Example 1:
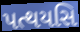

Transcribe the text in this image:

પત્થયસિ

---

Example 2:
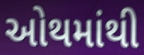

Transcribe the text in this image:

ઓથમાંથી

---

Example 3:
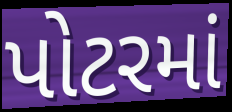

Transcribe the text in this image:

પોટરમાં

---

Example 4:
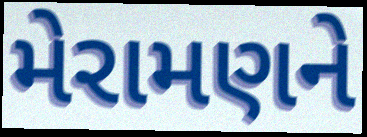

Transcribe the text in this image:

મેરામણને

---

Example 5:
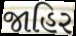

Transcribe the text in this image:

જાહિર